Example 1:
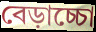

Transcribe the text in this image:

বেড়াচ্চো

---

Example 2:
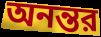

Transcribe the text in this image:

অনন্তর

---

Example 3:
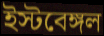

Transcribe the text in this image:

ইস্টবেঙ্গল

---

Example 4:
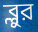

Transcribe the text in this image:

ব্লুর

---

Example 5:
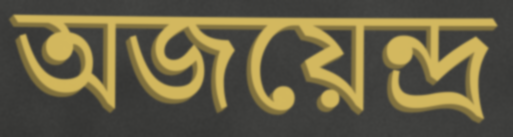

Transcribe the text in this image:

অজয়েন্দ্র